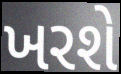
ખરશે